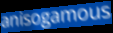
anisogamous